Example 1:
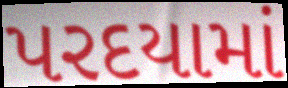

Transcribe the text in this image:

પરદયામાં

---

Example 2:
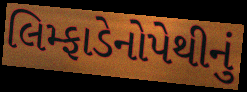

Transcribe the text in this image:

લિમ્ફાડેનોપેથીનું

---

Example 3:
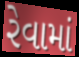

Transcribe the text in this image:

રેવામાં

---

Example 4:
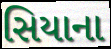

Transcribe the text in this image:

સિયાના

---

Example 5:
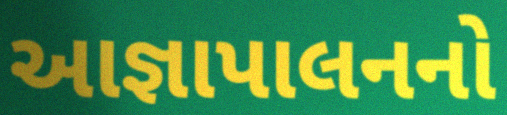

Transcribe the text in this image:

આજ્ઞાપાલનનો